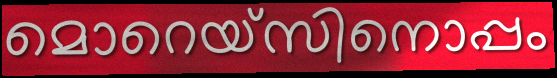
മൊറെയ്സിനൊപ്പം